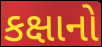
કક્ષાનો